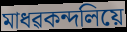
মাধৱকন্দলিয়ে